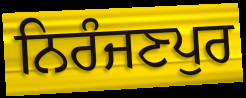
ਨਿਰੰਜਣਪੁਰ